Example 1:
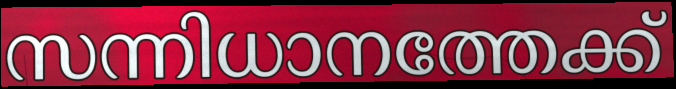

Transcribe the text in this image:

സന്നിധാനത്തേക്ക്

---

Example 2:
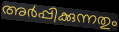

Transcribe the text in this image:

അർപ്പിക്കുന്നതും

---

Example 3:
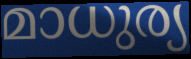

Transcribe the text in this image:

മാധുര്യ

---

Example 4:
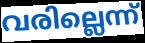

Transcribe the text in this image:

വരില്ലെന്ന്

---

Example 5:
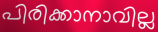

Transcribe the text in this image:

പിരിക്കാനാവില്ല